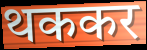
थककर